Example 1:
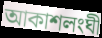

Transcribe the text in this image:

আকাশলংঘী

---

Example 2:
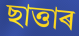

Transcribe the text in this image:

ছাত্তাৰ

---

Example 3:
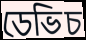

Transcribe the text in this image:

ডেভিচ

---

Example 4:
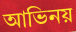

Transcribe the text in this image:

আভিনয়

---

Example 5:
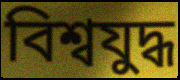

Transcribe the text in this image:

বিশ্বযুদ্ধ